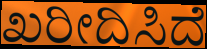
ಖರೀದಿಸಿದೆ